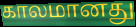
காலமானது